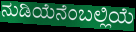
ನುಡಿಯೆನೆಂಬಲ್ಲಿಯೆ